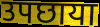
उपछाया